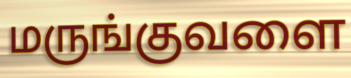
மருங்குவளை